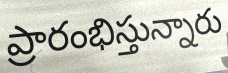
ప్రారంభిస్తున్నారు